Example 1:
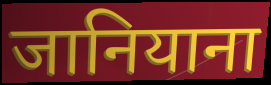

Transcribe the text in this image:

जानियाना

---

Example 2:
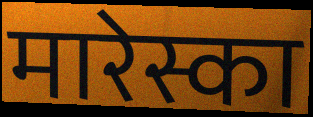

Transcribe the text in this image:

मारेस्का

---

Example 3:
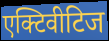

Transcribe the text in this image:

एक्टिवीटिज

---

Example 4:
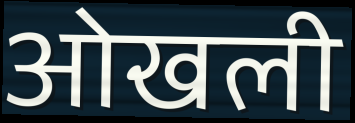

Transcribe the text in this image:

ओखली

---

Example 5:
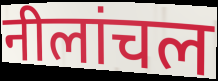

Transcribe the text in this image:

नीलांचल